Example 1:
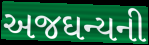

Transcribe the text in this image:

અજઘન્યની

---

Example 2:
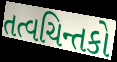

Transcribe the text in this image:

તત્વચિન્તકો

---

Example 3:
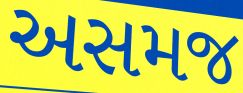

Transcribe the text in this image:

અસમજ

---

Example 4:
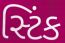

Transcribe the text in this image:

સ્ટિંક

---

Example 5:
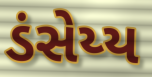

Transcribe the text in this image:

ડંસેય્ય